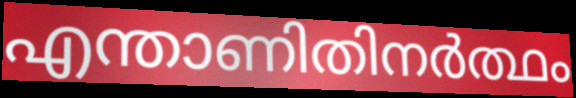
എന്താണിതിനർത്ഥം